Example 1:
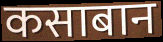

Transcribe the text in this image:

कसाबान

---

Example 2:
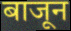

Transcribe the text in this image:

बाजून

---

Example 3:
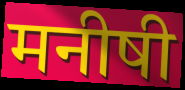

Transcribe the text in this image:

मनीषी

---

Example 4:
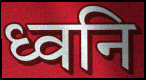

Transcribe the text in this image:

ध्वनि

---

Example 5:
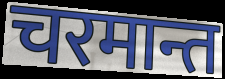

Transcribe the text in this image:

चरमान्त